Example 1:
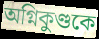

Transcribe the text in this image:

অগ্নিকুণ্ডকে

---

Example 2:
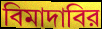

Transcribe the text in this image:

বিমাদাবির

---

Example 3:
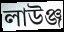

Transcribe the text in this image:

লাউঞ্জ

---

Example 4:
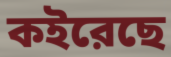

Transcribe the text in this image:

কইরেছে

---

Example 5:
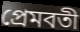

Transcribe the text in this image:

প্রেমবতী